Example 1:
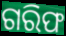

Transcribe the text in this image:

ଗରିଫ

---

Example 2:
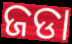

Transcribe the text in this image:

ଜଡା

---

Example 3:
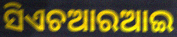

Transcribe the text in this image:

ସିଏଚଆରଆଇ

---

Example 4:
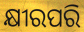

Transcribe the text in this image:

କ୍ଷୀରପରି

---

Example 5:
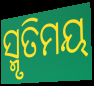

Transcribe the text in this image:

ସ୍ମୃତିମୟ